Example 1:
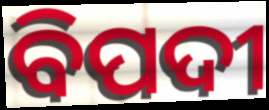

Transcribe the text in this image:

ବିପଦୀ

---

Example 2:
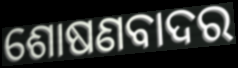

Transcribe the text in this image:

ଶୋଷଣବାଦର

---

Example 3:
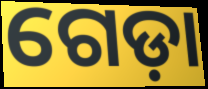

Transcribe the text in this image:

ଗେଡ଼ା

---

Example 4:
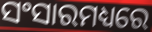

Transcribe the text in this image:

ସଂସାରମଧ୍ୟରେ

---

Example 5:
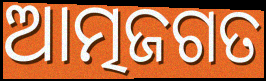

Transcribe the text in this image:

ଆତ୍ମଜଗତ